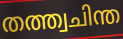
തത്ത്വചിന്ത